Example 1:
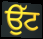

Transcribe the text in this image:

ਉੱਟ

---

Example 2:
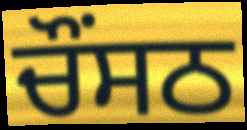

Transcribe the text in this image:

ਚੌਂਸਠ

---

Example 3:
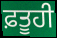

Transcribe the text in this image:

ਫ਼ਤੂਹੀ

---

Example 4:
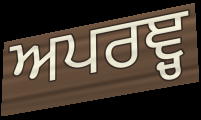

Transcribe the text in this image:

ਅਪਰਞ੍ਚ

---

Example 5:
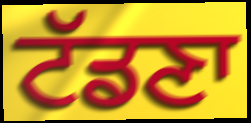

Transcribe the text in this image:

ਟੱਡਣਾ